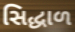
સિદ્ધાળ